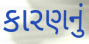
કારણનું